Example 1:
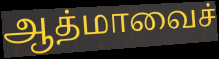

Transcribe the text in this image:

ஆத்மாவைச்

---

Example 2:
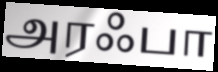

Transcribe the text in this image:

அரஃபா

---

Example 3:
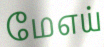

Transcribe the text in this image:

மேஎய்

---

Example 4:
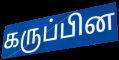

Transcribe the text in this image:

கருப்பின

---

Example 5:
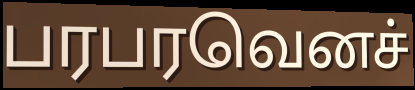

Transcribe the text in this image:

பரபரவெனச்